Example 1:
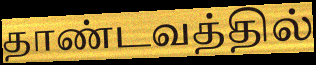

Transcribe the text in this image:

தாண்டவத்தில்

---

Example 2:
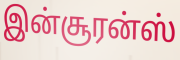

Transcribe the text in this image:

இன்சூரன்ஸ்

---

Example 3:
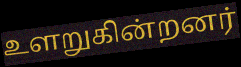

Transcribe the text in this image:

உளறுகின்றனர்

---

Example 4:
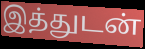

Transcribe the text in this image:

இத்துடன்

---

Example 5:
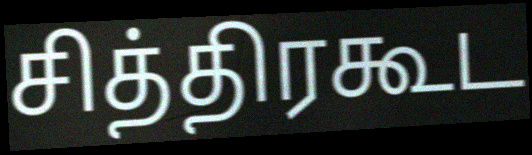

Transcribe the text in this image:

சித்திரகூட